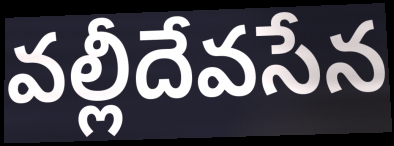
వల్లీదేవసేన